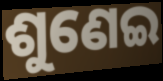
ଶୁଣେଇ